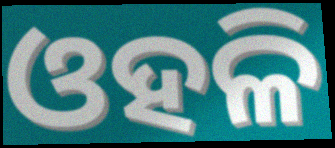
ଓହଳି